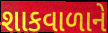
શાકવાળાને